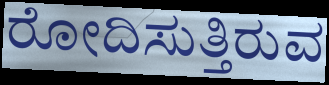
ರೋದಿಸುತ್ತಿರುವ